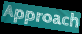
Approach